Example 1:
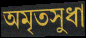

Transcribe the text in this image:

অমৃতসুধা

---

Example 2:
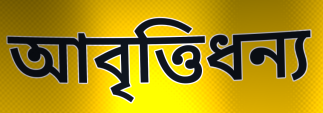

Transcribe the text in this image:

আবৃত্তিধন্য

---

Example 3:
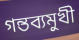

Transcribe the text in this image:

গন্তব্যমুখী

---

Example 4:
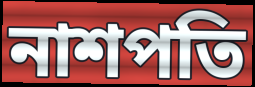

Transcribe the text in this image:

নাশপতি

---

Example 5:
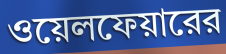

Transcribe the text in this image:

ওয়েলফেয়ারের